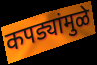
कपड्यांमुळे